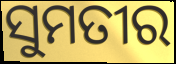
ସୁମତୀର